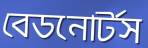
বেডনোর্টস